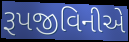
રૂપજીવિનીએ